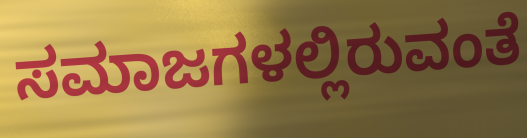
ಸಮಾಜಗಳಲ್ಲಿರುವಂತೆ